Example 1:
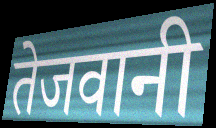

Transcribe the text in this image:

तेजवानी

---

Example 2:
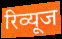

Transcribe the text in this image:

रिव्यूज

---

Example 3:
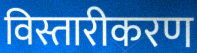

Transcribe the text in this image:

विस्तारीकरण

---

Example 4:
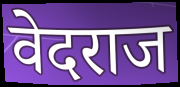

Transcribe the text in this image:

वेदराज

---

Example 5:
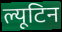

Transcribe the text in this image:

ल्यूटिन